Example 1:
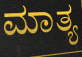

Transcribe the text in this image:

ಮಾತ್ಯ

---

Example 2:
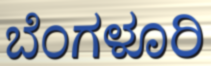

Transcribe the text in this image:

ಬೆಂಗಳೂರಿ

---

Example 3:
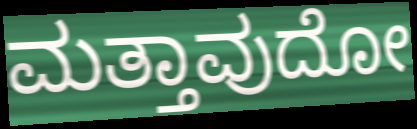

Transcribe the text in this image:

ಮತ್ತಾವುದೋ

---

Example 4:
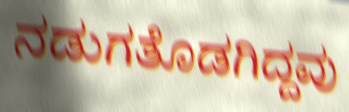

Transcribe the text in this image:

ನಡುಗತೊಡಗಿದ್ದವು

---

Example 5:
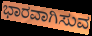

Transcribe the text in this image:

ಭಾರವಾಗಿಸುವ